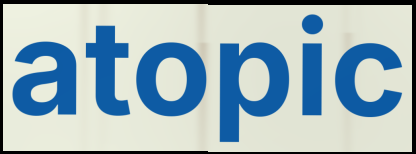
atopic